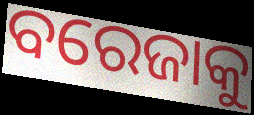
ବରେଜାକୁ